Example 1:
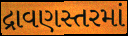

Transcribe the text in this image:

દ્રાવણસ્તરમાં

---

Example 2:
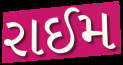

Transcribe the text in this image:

રાઈમ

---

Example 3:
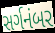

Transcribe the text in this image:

સર્ગનંબર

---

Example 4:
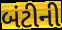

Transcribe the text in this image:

બંટીની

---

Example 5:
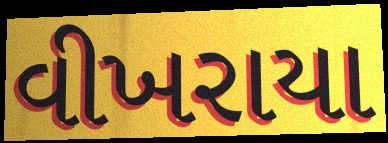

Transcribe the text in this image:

વીખરાયા